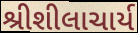
શ્રીશીલાચાર્ય